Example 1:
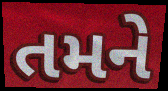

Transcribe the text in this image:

તમને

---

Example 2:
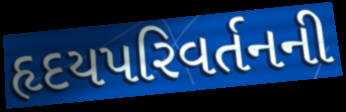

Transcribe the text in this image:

હૃદયપરિવર્તનની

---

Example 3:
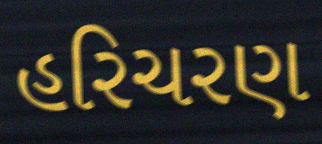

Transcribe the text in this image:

હરિચરણ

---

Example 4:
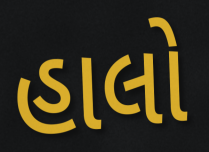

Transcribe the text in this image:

હાલો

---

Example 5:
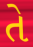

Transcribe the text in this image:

તે